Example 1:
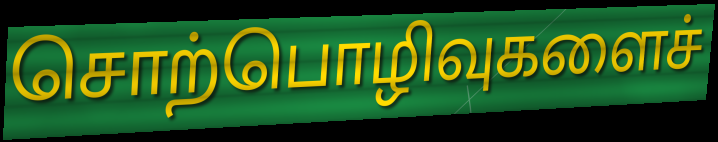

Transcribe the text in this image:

சொற்பொழிவுகளைச்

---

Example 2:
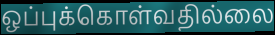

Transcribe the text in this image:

ஒப்புக்கொள்வதில்லை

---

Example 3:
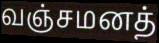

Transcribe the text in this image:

வஞ்சமனத்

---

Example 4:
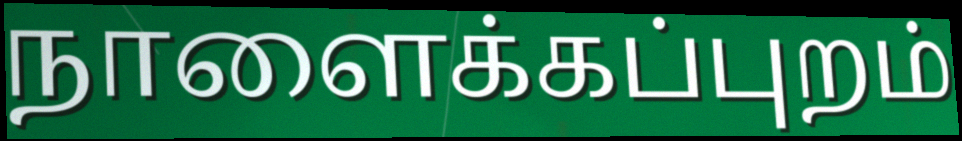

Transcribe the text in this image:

நாளைக்கப்புறம்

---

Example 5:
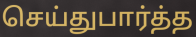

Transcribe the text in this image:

செய்துபார்த்த